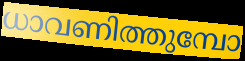
ധാവണിത്തുമ്പോ